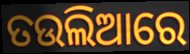
ତଉଲିଆରେ